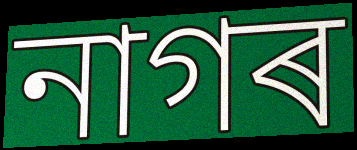
নাগৰ